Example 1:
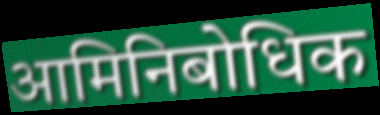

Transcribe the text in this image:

आमिनिबोधिक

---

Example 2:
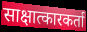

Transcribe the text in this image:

साक्षात्कारकर्ता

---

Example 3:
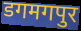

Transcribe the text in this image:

डगमगपुर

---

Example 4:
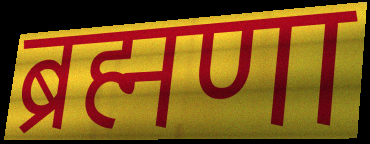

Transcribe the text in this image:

ब्रह्मणा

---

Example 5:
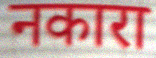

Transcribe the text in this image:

नकारा